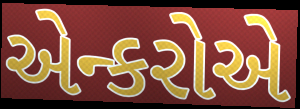
એન્કરોએ